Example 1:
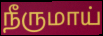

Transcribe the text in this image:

நீருமாய்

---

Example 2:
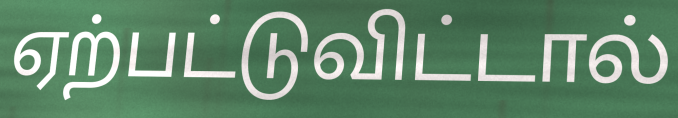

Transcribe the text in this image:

ஏற்பட்டுவிட்டால்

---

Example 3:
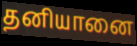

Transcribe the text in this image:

தனியானை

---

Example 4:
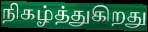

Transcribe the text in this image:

நிகழ்த்துகிறது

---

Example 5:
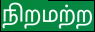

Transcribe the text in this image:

நிறமற்ற